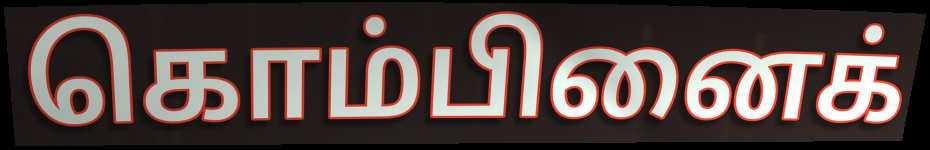
கொம்பினைக்